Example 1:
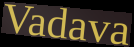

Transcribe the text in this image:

Vadava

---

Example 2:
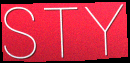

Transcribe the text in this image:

STY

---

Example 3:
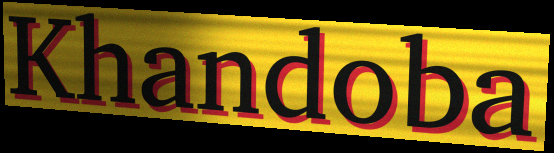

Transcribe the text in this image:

Khandoba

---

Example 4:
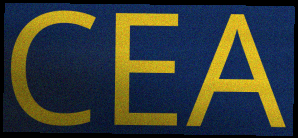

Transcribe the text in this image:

CEA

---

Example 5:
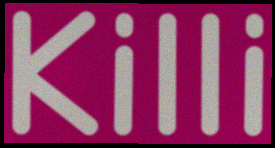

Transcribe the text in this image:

Killi